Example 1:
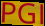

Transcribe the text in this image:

PGI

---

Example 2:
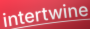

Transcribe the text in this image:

intertwine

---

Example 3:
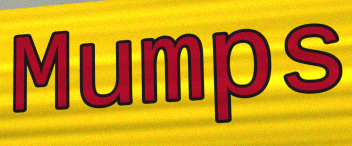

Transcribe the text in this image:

Mumps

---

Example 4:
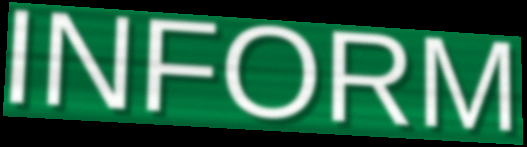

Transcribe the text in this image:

INFORM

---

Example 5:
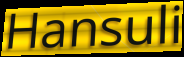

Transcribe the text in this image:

Hansuli